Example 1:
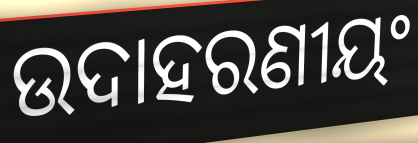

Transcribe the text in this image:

ଉଦାହରଣୀୟଂ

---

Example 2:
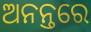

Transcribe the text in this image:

ଅନନ୍ତରେ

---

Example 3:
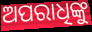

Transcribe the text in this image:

ଅପରାଧିଙ୍କୁ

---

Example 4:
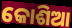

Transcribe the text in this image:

କୋଶିଆ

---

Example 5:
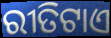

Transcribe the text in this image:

ରୀତିଟାଏ